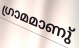
ഗ്രാമമാണു്